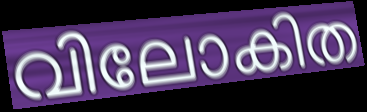
വിലോകിത